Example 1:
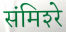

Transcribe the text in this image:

संमिश्रे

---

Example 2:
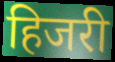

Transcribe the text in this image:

हिजरी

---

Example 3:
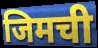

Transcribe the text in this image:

जिमची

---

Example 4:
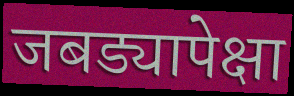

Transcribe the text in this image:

जबड्यापेक्षा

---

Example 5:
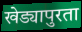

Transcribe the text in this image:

खेड्यापुरता